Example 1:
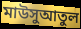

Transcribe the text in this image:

মাউসুআতুল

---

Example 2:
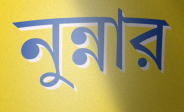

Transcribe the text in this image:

নুন্নার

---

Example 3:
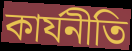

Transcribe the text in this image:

কার্যনীতি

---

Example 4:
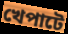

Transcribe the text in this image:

খেপাটে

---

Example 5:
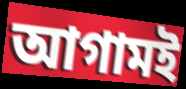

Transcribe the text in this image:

আগামই